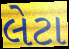
લેટા